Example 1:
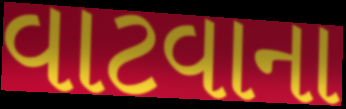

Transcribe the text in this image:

વાટવાના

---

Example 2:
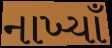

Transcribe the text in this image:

નાખ્યાઁ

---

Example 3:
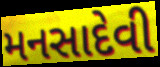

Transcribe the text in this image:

મનસાદેવી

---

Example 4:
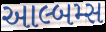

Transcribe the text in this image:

આલ્બમ્સ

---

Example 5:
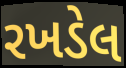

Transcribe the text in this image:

રખડેલ